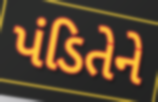
પંડિતેને